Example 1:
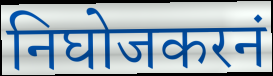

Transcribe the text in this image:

निघोजकरनं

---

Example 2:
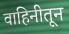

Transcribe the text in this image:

वाहिनीतून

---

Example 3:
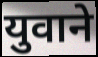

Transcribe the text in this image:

युवाने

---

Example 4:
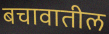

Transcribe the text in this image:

बचावातील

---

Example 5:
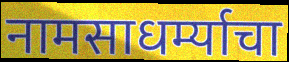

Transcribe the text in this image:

नामसाधर्म्याचा